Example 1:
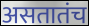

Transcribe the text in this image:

असतातंच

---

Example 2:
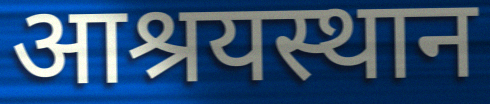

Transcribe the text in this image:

आश्रयस्थान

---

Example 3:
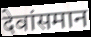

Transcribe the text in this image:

देवांसमान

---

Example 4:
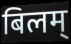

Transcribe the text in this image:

बिलम्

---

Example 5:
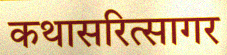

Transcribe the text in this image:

कथासरित्सागर